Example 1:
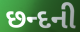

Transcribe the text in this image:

છન્દની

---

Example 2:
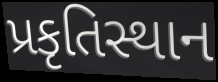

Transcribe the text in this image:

પ્રકૃતિસ્થાન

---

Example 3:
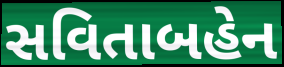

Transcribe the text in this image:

સવિતાબહેન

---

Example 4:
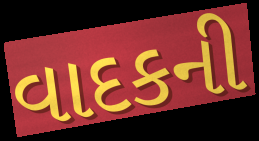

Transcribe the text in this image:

વાદકની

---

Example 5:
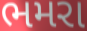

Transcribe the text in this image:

ભમરા